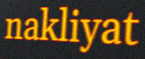
nakliyat